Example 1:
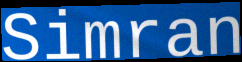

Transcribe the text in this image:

Simran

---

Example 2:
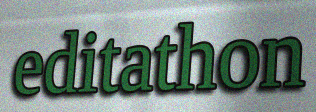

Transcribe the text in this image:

editathon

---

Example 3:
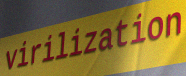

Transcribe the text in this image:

virilization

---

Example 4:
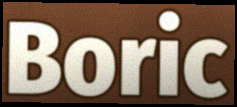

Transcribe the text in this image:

Boric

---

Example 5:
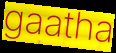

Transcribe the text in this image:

gaatha